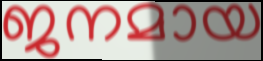
ജനമായ